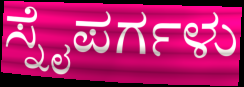
ಸ್ನೈಪರ್ಗಳು